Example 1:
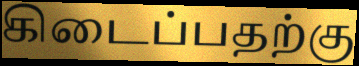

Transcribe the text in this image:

கிடைப்பதற்கு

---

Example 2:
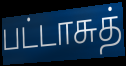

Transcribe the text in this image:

பட்டாசுத்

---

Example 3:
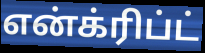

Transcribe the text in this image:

என்க்ரிப்ட்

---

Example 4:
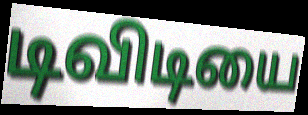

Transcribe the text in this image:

டிவிடியை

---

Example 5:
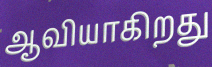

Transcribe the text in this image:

ஆவியாகிறது